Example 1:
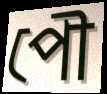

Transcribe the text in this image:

পৌ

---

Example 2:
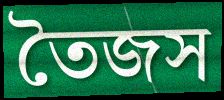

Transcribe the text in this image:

তৈজস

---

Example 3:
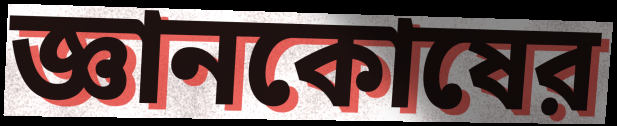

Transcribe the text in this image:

জ্ঞানকোষের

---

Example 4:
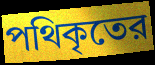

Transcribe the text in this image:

পথিকৃতের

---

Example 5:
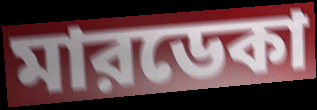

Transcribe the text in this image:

মারডেকা